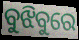
ବୁଝିବୁରେ